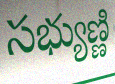
సభ్యుణ్ణి